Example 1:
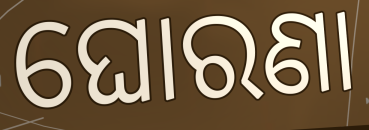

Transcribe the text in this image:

ଘୋରଣା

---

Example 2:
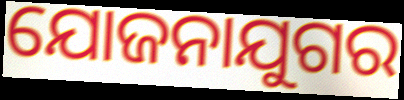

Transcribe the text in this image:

ଯୋଜନାଯୁଗର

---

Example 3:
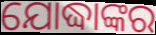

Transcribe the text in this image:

ଯୋଦ୍ଧାଙ୍କର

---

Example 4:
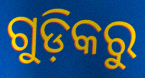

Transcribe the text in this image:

ଗୁଡ଼ିକରୁ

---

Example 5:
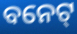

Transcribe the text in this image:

ବନେଟ୍